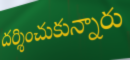
దర్శించుకున్నారు